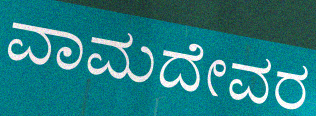
ವಾಮದೇವರ